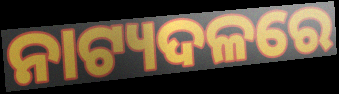
ନାଟ୍ୟଦଳରେ